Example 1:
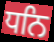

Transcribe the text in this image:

ਧਨਿ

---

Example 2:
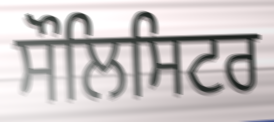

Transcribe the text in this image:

ਸੌਲਿਸਿਟਰ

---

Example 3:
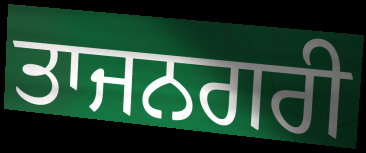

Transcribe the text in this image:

ਤਾਜਨਗਰੀ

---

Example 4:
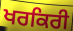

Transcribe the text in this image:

ਖਰਕਿਰੀ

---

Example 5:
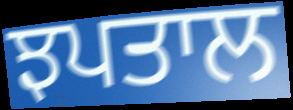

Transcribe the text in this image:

ਝਪਤਾਲ